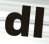
dl